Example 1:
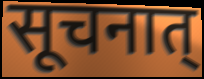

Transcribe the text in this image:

सूचनात्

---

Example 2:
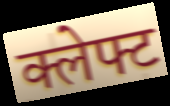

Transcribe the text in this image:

क्लेफ्ट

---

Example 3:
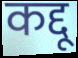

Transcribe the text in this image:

कद्दू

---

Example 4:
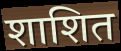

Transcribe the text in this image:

शाशित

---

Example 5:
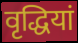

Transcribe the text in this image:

वृद्धियां